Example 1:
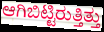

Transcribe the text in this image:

ಆಗಿಬಿಟ್ಟಿರುತ್ತಿತ್ತು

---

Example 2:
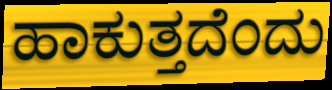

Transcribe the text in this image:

ಹಾಕುತ್ತದೆಂದು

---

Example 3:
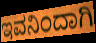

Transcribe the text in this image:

ಇವನಿಂದಾಗಿ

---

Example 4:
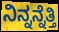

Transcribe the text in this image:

ನಿನ್ನನ್ನೆತ್ತಿ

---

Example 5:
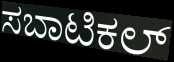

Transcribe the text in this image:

ಸಬಾಟಿಕಲ್